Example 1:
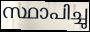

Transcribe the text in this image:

സ്ഥാപിച്ചു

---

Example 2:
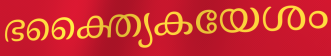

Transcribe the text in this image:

ഭക്ത്യൈകയേശം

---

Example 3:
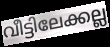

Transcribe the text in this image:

വീട്ടിലേക്കല്ല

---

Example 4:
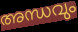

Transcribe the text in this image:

അന്ധവും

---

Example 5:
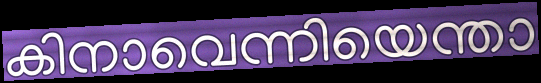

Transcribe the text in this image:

കിനാവെന്നിയെന്താ